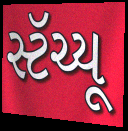
સ્ટૅચ્યૂ